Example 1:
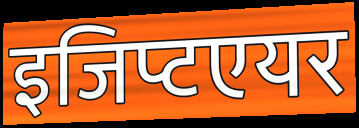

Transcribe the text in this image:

इजिप्टएयर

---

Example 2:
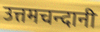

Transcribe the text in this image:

उत्तमचन्दानी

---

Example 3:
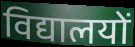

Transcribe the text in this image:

विद्यालयों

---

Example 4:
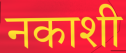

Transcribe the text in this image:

नकाशी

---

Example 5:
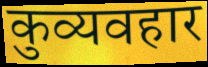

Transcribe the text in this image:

कुव्यवहार